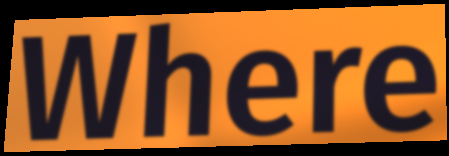
Where